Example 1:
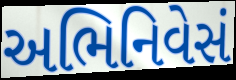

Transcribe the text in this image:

અભિનિવેસં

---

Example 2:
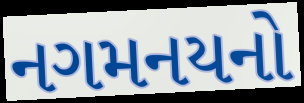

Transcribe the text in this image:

નગમનયનો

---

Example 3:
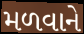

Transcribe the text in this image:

મળવાને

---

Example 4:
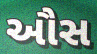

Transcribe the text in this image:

ઔસ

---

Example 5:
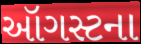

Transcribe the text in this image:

ઑગસ્ટના